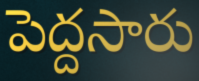
పెద్దసారు